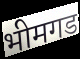
भीमगड